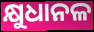
କ୍ଷୁଧାନଳ